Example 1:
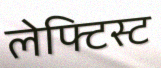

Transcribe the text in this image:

लेफ्टिस्ट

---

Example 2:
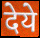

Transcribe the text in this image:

देये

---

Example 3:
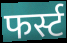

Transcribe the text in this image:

फर्स्ट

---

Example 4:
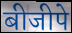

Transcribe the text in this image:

बीजीपे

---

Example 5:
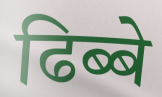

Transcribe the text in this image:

ढिब्बे